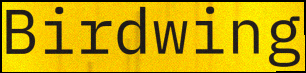
Birdwing